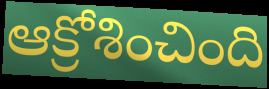
ఆక్రోశించింది